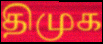
திமுக